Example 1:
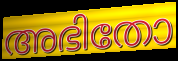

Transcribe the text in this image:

അഭിതോ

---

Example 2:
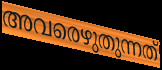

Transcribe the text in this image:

അവരെഴുതുന്നത്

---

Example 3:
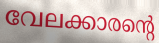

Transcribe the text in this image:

വേലക്കാരന്റെ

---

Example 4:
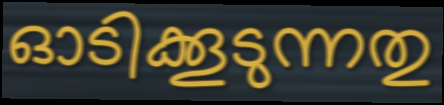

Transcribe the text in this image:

ഓടിക്കൂടുന്നതു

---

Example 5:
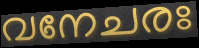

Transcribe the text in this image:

വനേചരഃ